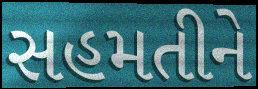
સહમતીને